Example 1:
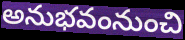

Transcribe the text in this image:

అనుభవంనుంచి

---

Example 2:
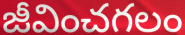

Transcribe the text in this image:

జీవించగలం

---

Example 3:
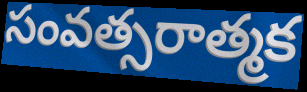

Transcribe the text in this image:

సంవత్సరాత్మక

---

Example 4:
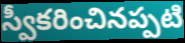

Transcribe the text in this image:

స్వీకరించినప్పటి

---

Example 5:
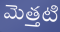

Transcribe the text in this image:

మెత్తటి